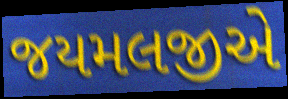
જયમલજીએ